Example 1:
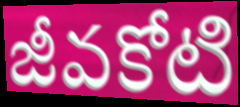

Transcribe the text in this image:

జీవకోటి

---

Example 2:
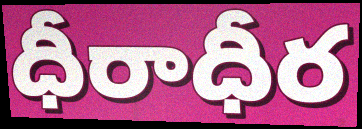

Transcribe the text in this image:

ధీరాధీర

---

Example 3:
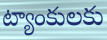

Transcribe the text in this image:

ట్యాంకులకు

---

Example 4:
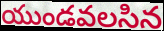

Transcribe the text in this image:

యుండవలసిన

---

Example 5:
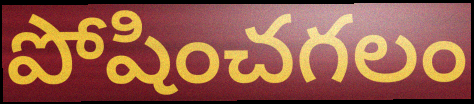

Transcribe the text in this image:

పోషించగలం